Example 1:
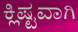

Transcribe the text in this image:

ಕ್ಲಿಷ್ಟವಾಗಿ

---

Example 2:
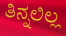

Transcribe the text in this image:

ತಿನ್ನಲಿಲ್ಲ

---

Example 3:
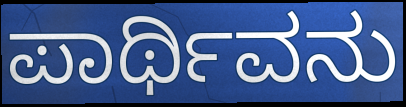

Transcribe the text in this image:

ಪಾರ್ಥಿವನು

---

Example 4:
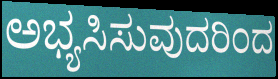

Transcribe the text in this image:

ಅಭ್ಯಸಿಸುವುದರಿಂದ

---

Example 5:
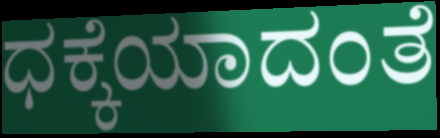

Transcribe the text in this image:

ಧಕ್ಕೆಯಾದಂತೆ